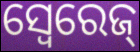
ସ୍ୱେରେଜ୍